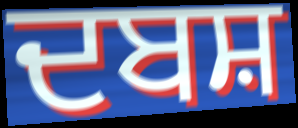
ਦਬਸ਼